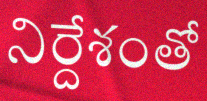
నిర్దేశంతో